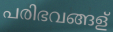
പരിഭവങ്ങള്